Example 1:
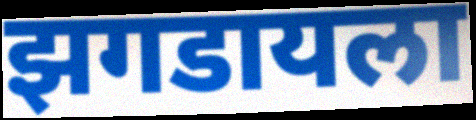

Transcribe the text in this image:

झगडायला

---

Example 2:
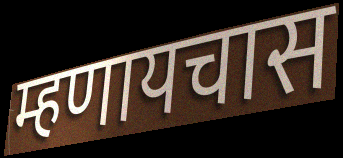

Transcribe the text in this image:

म्हणायचास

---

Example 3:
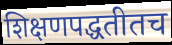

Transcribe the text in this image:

शिक्षणपद्धतीतच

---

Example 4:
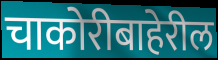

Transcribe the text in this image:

चाकोरीबाहेरील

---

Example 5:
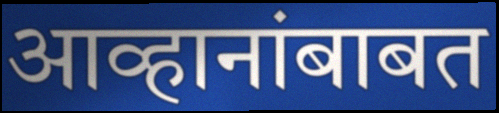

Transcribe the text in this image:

आव्हानांबाबत